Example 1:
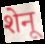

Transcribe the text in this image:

शेनू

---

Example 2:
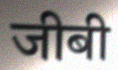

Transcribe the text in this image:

जीबी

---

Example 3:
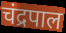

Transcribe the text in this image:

चंद्रपाल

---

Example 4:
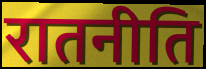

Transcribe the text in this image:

रातनीति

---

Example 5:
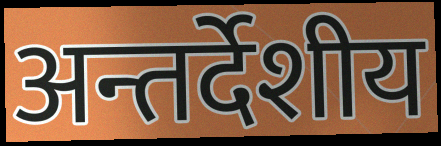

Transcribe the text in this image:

अन्तर्देशीय